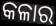
କଳାର